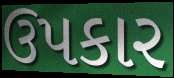
ઉપકાર